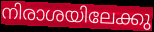
നിരാശയിലേക്കു